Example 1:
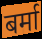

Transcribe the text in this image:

बर्मा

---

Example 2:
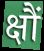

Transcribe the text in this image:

क्षौं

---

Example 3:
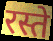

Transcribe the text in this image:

रस्ते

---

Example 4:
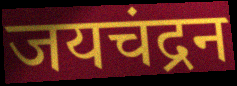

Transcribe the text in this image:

जयचंद्रन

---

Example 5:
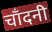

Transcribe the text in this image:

चाँदनी